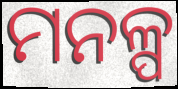
ମନଳ୍ପ